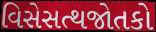
વિસેસત્થજોતકો